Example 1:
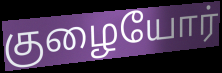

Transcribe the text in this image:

குழையோர்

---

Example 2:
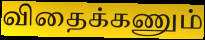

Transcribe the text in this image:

விதைக்கணும்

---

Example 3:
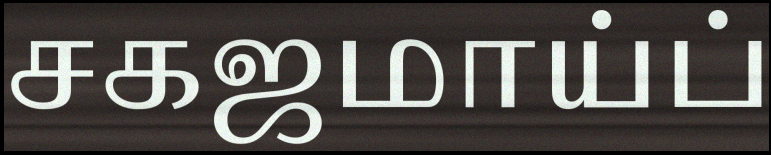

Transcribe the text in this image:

சகஜமாய்ப்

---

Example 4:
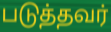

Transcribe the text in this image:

படுத்தவர்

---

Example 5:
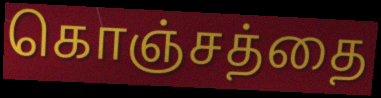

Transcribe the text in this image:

கொஞ்சத்தை